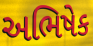
અભિષેક